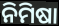
ନିମିଷା